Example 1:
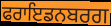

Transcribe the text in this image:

ਫਰਾਇਡਨਬਰਗ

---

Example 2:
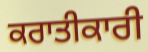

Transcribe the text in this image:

ਕਰਾਤੀਕਾਰੀ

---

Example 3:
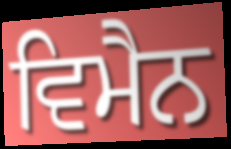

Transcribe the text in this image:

ਵਿਮੈਨ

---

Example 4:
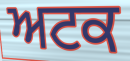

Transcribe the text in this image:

ਅਟਕ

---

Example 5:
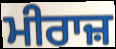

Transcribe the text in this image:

ਮੀਰਾਜ਼